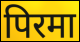
पिरमा